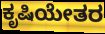
ಕೃಷಿಯೇತರ